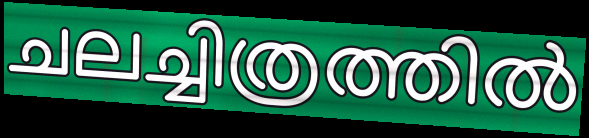
ചലച്ചിത്രത്തിൽ